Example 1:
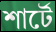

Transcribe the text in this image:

শার্টে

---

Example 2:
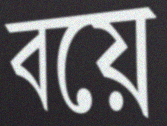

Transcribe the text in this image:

বয়ে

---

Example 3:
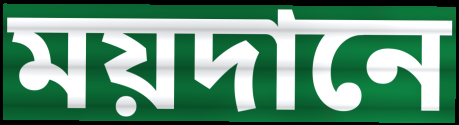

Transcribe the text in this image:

ময়দানে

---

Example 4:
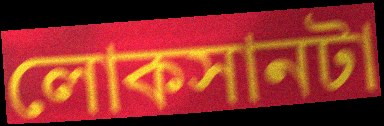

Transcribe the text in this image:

লোকসানটা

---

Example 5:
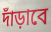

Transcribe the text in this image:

দাঁড়াবে